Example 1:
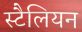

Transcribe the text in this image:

स्टैलियन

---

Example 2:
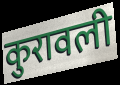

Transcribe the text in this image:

कुरावली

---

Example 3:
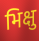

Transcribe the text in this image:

भिक्षु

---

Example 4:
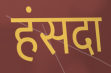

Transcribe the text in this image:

हंसदा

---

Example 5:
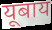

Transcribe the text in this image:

यूबाय